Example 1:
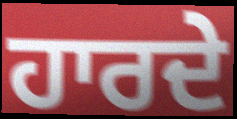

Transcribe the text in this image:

ਹਾਰਦੇ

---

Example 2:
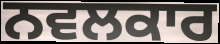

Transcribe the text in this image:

ਨਵਲਕਾਰ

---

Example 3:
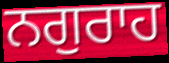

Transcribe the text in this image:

ਨਗੁਰਾਹ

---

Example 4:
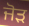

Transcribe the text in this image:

ਜੋੜ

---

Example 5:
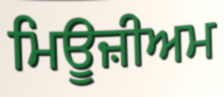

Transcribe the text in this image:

ਮਿਊਜ਼ੀਅਮ